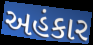
અહંકાર